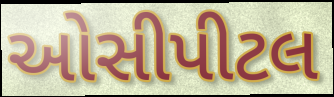
ઓસીપીટલ